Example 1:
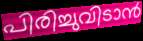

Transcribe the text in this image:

പിരിച്ചുവിടാൻ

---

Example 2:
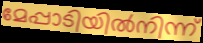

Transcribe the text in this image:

മേപ്പാടിയിൽനിന്ന്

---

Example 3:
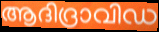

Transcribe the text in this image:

ആദിദ്രാവിഡ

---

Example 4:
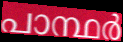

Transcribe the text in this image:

പാന്ഥർ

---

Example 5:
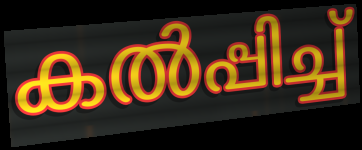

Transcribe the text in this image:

കൽപ്പിച്ച്